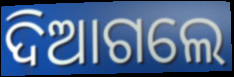
ଦିଆଗଲେ